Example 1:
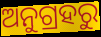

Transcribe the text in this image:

ଅନୁଗ୍ରହରୁ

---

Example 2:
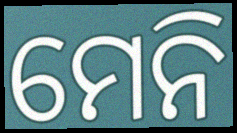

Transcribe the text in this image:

ମେନି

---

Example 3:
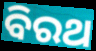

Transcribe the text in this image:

ବିରଥ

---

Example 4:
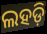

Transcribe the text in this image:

ଲହଡ଼ି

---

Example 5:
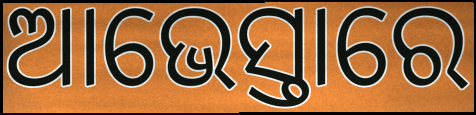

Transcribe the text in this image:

ଆଭେସ୍ତାରେ